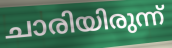
ചാരിയിരുന്ന്